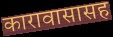
कारावासासह